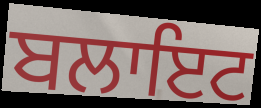
ਬਲਾਇਟ